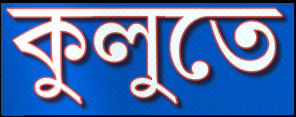
কুলুতে